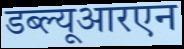
डब्ल्यूआरएन